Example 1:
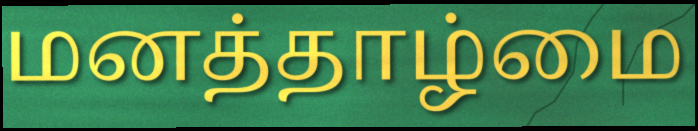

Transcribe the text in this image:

மனத்தாழ்மை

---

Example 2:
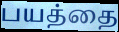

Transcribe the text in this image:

பயத்தை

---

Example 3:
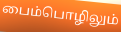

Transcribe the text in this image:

பைம்பொழிலும்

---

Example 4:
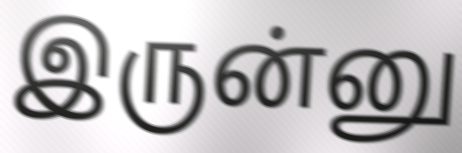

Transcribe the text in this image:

இருன்னு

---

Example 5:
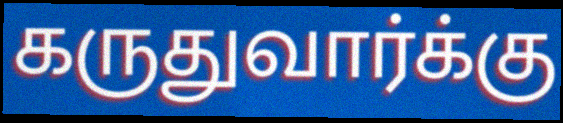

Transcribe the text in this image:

கருதுவார்க்கு